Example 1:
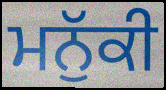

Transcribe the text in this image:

ਮਨੁੱਕੀ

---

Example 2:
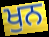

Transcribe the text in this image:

ਖੁਨ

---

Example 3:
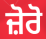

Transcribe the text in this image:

ਜ਼ੋਰੋ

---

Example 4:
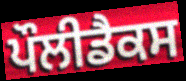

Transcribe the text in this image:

ਪੌਲੀਡੈਕਸ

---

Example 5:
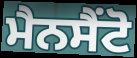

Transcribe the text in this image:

ਮੈਨਸੈਂਟੋ